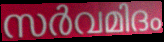
സർവമിദം